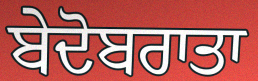
ਬੇਦੋਬਰਾਤਾ